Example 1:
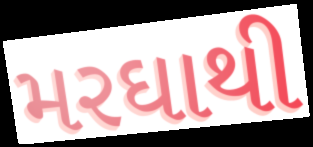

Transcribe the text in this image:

મરઘાથી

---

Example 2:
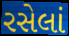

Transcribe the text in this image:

રસેલાં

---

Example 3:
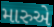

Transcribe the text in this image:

મારુએ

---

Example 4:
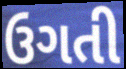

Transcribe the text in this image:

ઉગતી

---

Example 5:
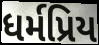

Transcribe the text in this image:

ધર્મપ્રિય